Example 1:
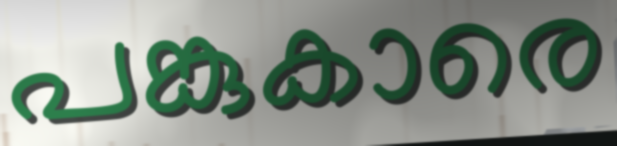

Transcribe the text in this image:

പങ്കുകാരെ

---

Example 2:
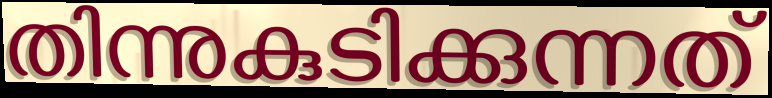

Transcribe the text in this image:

തിന്നുകുടിക്കുന്നത്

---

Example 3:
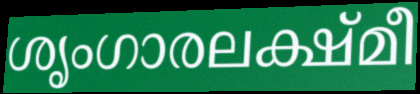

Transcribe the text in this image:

ശൃംഗാരലക്ഷ്മീ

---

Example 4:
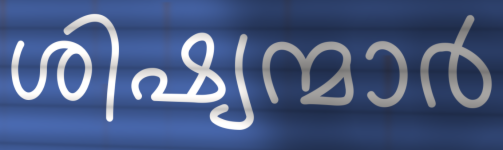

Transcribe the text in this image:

ശിഷ്യന്മാർ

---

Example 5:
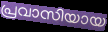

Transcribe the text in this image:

പ്രവാസിയായ